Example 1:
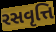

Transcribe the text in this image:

રસવૃત્તિ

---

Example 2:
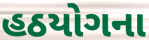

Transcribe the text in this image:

હઠયોગના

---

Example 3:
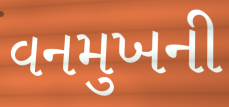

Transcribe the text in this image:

વનમુખની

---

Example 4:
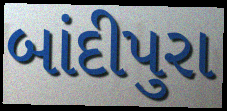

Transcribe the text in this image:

બાંદીપુરા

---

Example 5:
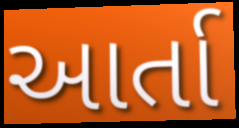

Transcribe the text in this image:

આર્તા